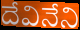
దేవినేని